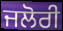
ਜਲੋਰੀ